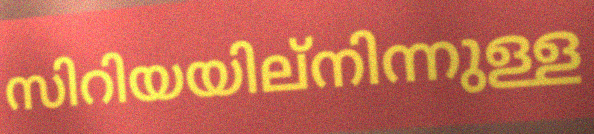
സിറിയയില്നിന്നുള്ള